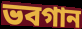
ভবগান